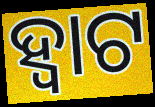
ହ୍ଵାଟ